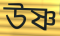
উষ্ণ